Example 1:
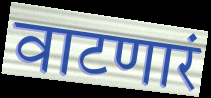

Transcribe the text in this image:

वाटणारं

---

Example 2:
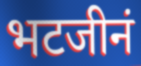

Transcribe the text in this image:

भटजीनं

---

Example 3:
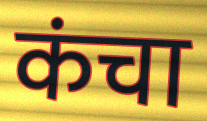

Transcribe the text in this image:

कंचा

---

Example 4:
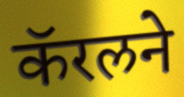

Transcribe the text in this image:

कॅरलने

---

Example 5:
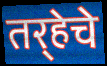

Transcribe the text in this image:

तर्‍हेचे